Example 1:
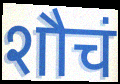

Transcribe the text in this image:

शौचं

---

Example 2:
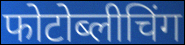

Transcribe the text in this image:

फोटोब्लीचिंग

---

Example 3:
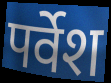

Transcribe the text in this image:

पर्वेश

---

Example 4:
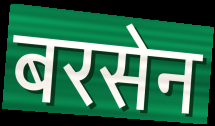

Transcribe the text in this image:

बरसेन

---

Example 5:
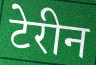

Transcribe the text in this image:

टेरीन